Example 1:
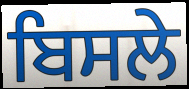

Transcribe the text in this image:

ਬਿਸਲੇ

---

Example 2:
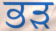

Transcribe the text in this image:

ਭੜ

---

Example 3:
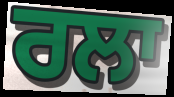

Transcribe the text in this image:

ਰਲਾ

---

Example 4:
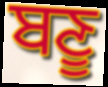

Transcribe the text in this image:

ਬਣੂ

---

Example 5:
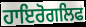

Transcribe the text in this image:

ਹਾਇਰੋਗਲਿਫ